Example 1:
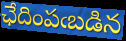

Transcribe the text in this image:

ఛేదింపఁబడిన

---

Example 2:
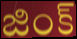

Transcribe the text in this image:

జింక్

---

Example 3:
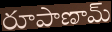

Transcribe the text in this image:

రూపాణామ్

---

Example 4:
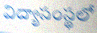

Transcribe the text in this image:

విద్యాసంస్థలో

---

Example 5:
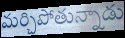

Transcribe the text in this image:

మర్చిపోతున్నాడు